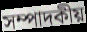
সম্পাদকীয়